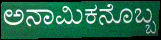
ಅನಾಮಿಕನೊಬ್ಬ